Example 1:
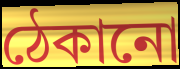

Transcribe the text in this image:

ঠেকানো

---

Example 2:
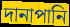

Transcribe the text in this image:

দানাপানি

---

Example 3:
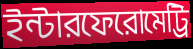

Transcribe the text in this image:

ইন্টারফেরোমেট্রি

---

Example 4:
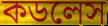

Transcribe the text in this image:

কডলেস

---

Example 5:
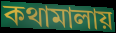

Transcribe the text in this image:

কথামালায়